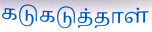
கடுகடுத்தாள்